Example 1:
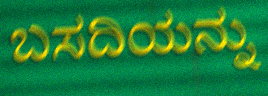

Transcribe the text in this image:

ಬಸದಿಯನ್ನು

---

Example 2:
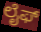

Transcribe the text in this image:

ಲೈಫ್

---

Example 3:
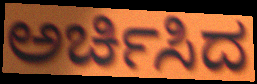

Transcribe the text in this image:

ಅರ್ಚಿಸಿದ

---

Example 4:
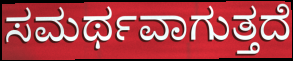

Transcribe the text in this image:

ಸಮರ್ಥವಾಗುತ್ತದೆ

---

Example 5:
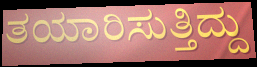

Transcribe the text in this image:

ತಯಾರಿಸುತ್ತಿದ್ದು